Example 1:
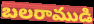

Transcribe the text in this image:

బలరాముడి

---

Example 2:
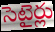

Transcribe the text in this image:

సెటైర్లు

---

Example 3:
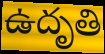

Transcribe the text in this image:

ఉదృతి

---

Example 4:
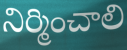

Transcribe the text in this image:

నిర్మించాలి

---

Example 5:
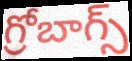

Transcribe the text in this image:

గ్రోబాగ్స్